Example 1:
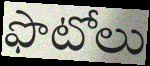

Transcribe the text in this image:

ఫొటోలు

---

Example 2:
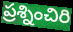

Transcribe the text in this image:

ప్రశ్నించిరి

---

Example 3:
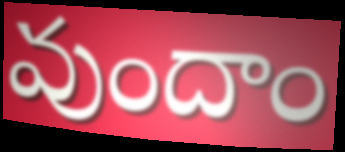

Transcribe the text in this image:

వుందాం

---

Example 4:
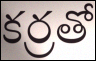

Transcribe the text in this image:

కర్రతో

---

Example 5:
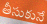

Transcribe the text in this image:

తీసుకునే